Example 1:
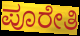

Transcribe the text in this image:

ಪೂರೇತಿ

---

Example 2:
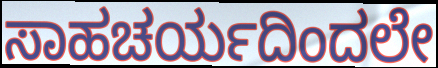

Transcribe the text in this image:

ಸಾಹಚರ್ಯದಿಂದಲೇ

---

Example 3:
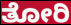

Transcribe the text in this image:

ತೋರಿ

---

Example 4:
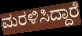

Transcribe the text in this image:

ಮರಳಿಸಿದ್ದಾರೆ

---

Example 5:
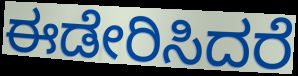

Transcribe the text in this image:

ಈಡೇರಿಸಿದರೆ